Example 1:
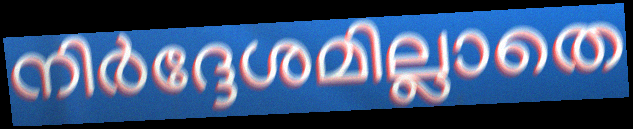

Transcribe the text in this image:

നിർദ്ദേശമില്ലാതെ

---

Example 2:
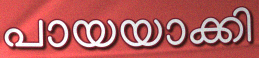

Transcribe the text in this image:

പായയാക്കി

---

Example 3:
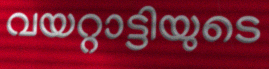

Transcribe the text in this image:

വയറ്റാട്ടിയുടെ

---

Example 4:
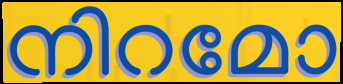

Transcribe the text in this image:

നിറമോ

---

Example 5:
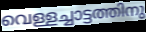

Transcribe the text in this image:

വെള്ളച്ചാട്ടത്തിനു